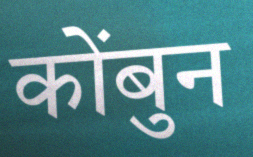
कोंबुन